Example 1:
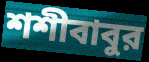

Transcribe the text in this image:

শশীবাবুর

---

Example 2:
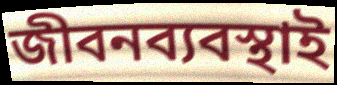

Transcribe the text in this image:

জীবনব্যবস্থাই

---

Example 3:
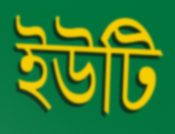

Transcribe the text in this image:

ইউটি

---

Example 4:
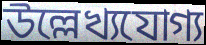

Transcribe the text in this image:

উল্লেখ্যযোগ্য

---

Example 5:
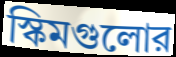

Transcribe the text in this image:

স্কিমগুলোর